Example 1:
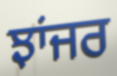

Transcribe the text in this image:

ਝਾਂਜਰ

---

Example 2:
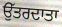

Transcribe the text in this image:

ਉੱਤਰਦਾਤਾ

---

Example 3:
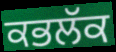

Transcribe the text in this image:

ਕਭਲੱਕ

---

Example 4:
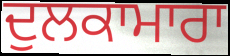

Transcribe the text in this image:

ਦੁਲਕਾਮਾਰਾ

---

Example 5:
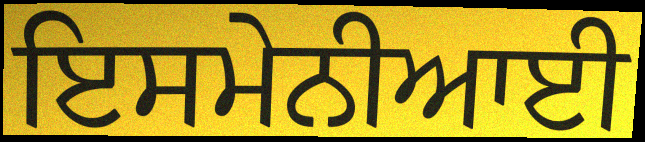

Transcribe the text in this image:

ਇਸਮੇਨੀਆਈ